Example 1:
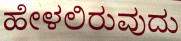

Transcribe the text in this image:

ಹೇಳಲಿರುವುದು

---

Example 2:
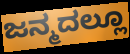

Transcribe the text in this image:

ಜನ್ಮದಲ್ಲೂ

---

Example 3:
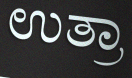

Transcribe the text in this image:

ಉತ್ರಾ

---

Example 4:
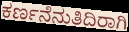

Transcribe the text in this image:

ಕರ್ಣನೆನುತಿದಿರಾಗಿ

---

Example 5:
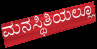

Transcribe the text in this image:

ಮನಸ್ಥಿತಿಯಲ್ಲೂ